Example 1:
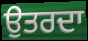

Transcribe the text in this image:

ਉਤਰਦਾ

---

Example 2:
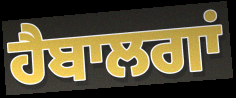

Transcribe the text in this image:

ਹੈਬਾਲਗਾਂ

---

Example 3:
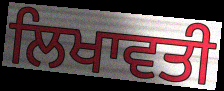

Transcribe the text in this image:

ਲਿਖਾਵਤੀ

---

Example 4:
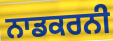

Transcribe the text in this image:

ਨਾਡਕਰਨੀ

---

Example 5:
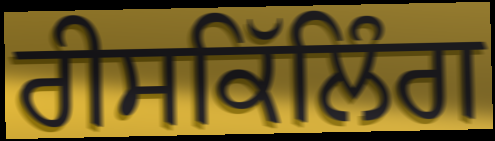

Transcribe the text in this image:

ਰੀਸਕਿੱਲਿੰਗ